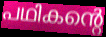
പഥികന്റെ